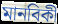
মানবিকী